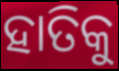
ହାତିକୁ